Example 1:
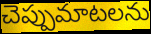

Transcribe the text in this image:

చెప్పుమాటలను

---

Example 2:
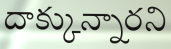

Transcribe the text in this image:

దాక్కున్నారని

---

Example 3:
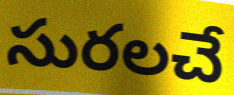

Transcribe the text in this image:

సురలచే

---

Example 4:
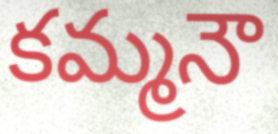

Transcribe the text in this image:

కమ్మనౌ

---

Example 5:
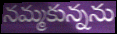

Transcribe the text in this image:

నమ్మకున్నను